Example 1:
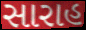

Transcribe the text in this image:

સારાહ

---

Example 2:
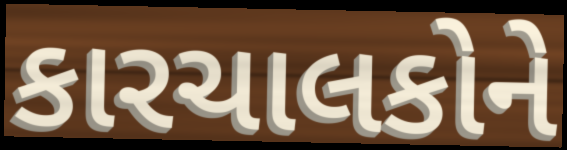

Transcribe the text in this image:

કારચાલકોને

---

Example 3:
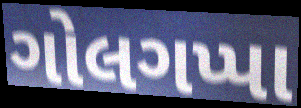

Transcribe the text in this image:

ગોલગપ્પા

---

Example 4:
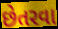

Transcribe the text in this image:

છેતરવા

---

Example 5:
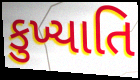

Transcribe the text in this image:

કુખ્યાતિ